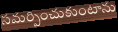
సమర్పించుకుంటాను